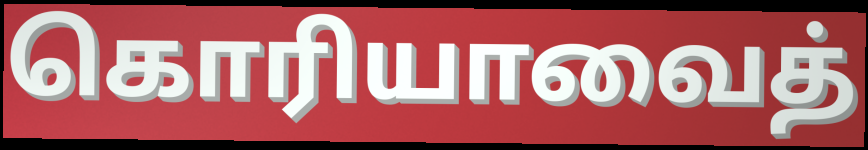
கொரியாவைத்